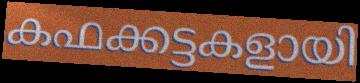
കഫക്കട്ടകളായി